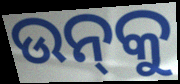
ଉନ୍‌କୁ